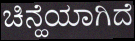
ಚಿನ್ಹೆಯಾಗಿದೆ